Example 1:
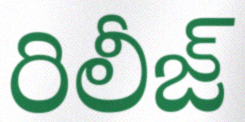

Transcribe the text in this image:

రిలీజ్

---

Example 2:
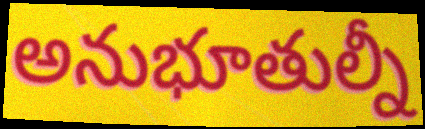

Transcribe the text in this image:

అనుభూతుల్నీ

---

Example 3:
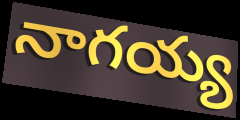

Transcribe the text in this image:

నాగయ్య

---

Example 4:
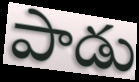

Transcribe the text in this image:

పాడు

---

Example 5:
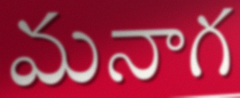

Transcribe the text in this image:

మనాగ